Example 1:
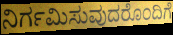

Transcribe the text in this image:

ನಿರ್ಗಮಿಸುವುದರೊಂದಿಗೆ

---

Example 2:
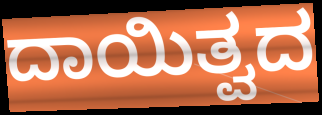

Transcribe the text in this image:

ದಾಯಿತ್ವದ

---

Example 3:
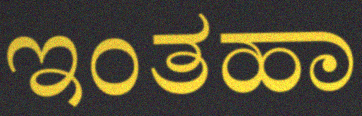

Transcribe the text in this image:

ಇಂತಹಾ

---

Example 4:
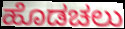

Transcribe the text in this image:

ಹೊಡಚಲು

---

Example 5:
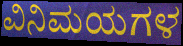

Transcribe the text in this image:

ವಿನಿಮಯಗಳ